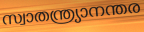
സ്വാതന്ത്ര്യാനന്തര